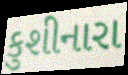
કુશીનારા